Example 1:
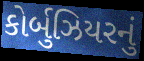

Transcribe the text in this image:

કોર્બુઝિયરનું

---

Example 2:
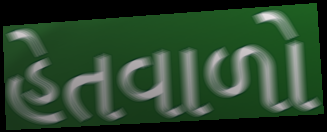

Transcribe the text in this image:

હેતવાળો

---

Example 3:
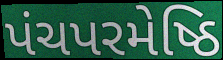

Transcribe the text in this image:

પંચપરમેષ્ઠિ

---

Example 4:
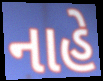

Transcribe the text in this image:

નાહે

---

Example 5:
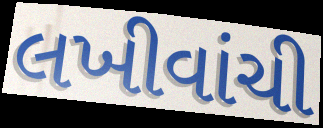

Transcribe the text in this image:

લખીવાંચી